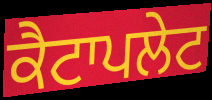
ਕੈਟਾਪਲੇਟ